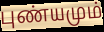
புண்யமும்